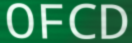
OFCD